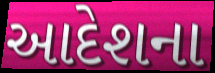
આદેશના